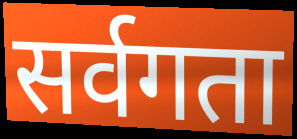
सर्वगता